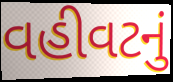
વહીવટનું